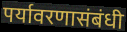
पर्यावरणासंबंधी